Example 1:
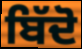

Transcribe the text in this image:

ਬਿੱਦੋ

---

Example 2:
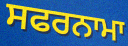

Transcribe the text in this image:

ਸਫਰਨਾਮਾ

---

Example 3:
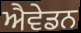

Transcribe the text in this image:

ਐਵੇਡਨ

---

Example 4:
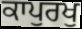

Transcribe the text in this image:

ਕਾਪੁਰਖੁ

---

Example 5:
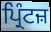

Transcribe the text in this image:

ਪ੍ਰਿੰਟਜ਼